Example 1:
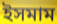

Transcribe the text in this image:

ইসমাম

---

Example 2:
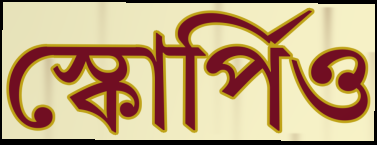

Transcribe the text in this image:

স্কোর্পিও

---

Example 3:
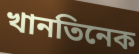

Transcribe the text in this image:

খানতিনেক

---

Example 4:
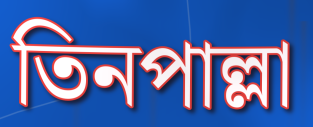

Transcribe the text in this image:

তিনপাল্লা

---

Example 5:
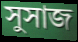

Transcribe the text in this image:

সুসাজ